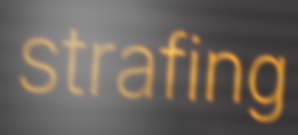
strafing